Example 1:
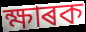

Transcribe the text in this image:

ক্ষাৰক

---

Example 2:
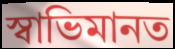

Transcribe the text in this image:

স্বাভিমানত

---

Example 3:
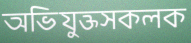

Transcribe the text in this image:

অভিযুক্তসকলক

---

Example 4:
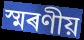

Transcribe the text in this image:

স্মৰণীয়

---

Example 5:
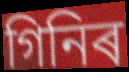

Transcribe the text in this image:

গিনিৰ